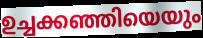
ഉച്ചക്കഞ്ഞിയെയും